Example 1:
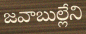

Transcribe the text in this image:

జవాబుల్లేని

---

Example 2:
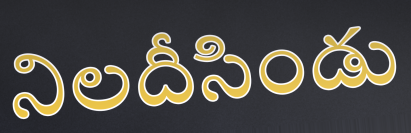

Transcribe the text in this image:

నిలదీసిండు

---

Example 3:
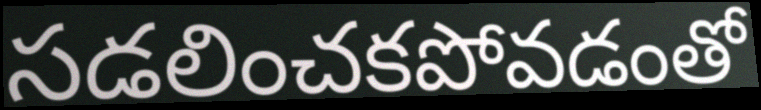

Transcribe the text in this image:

సడలించకపోవడంతో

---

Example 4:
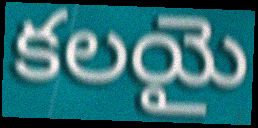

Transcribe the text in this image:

కలయై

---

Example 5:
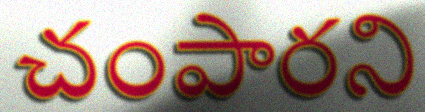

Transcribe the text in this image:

చంపారని